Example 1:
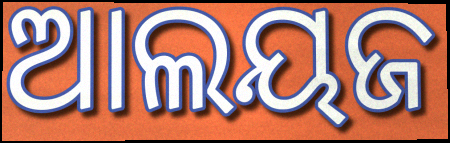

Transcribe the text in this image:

ଆଲୟଜ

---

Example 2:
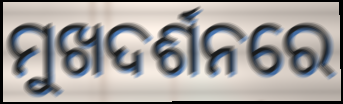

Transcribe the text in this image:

ମୁଖଦର୍ଶନରେ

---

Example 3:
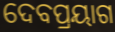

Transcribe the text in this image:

ଦେବପ୍ରୟାଗ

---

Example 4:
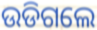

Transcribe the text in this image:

ଉଡିଗଲେ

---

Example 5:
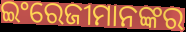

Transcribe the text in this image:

ଇଂରେଜୀମାନଙ୍କର